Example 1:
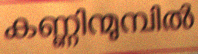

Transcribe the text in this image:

കണ്ണിന്മുമ്പിൽ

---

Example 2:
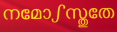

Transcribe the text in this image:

നമോഽസ്തുതേ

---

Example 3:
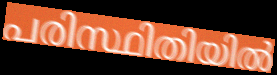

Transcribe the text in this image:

പരിസ്ഥിതിയിൽ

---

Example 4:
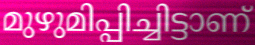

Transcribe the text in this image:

മുഴുമിപ്പിച്ചിട്ടാണ്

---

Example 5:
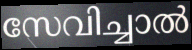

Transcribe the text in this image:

സേവിച്ചാൽ